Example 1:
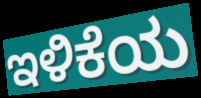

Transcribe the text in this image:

ಇಳಿಕೆಯ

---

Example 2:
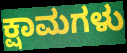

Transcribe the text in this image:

ಕ್ಷಾಮಗಳು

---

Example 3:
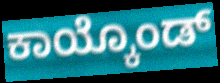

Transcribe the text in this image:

ಕಾಯ್ಕೊಂಡ್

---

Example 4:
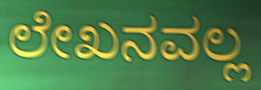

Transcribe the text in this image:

ಲೇಖನವಲ್ಲ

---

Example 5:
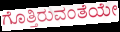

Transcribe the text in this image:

ಗೊತ್ತಿರುವಂತೆಯೇ